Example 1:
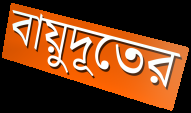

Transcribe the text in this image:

বায়ুদূতের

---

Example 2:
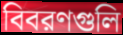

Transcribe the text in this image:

বিবরণগুলি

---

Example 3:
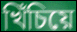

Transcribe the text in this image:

খিঁচিয়ে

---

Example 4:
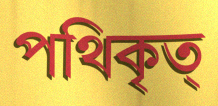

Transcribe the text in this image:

পথিকৃত্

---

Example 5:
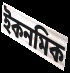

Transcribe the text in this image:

ইকনমিক